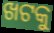
ଖଟକୁ